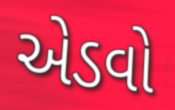
એડવો